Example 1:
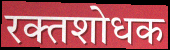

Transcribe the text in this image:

रक्तशोधक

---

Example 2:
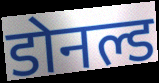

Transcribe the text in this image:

डोनल्‍ड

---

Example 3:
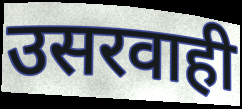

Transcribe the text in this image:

उसरवाही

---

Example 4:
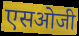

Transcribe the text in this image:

एसओजी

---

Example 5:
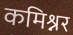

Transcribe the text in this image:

कमिश्नर